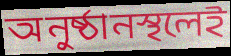
অনুষ্ঠানস্থলেই